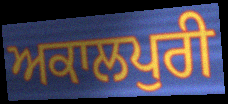
ਅਕਾਲਪੁਰੀ